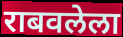
राबवलेला